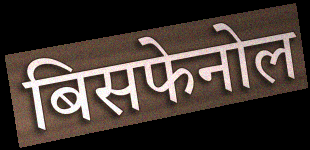
बिसफेनोल